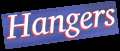
Hangers